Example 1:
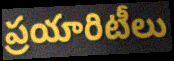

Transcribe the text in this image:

ప్రయారిటీలు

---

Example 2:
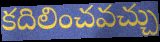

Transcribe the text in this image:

కదిలించవచ్చు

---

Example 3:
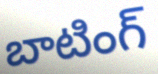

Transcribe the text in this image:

బాటింగ్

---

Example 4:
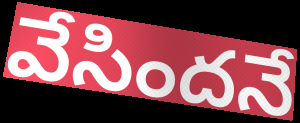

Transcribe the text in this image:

వేసిందనే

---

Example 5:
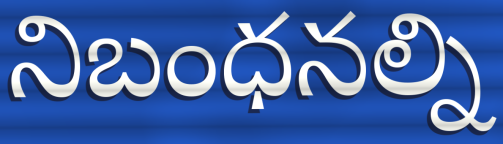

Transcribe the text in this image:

నిబంధనల్ని